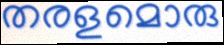
തരളമൊരു